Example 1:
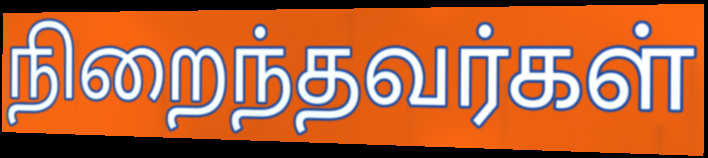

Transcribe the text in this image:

நிறைந்தவர்கள்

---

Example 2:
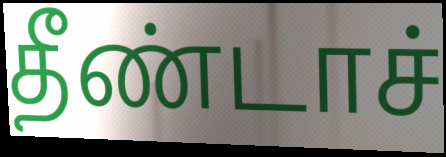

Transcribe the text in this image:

தீண்டாச்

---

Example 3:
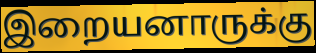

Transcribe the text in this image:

இறையனாருக்கு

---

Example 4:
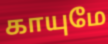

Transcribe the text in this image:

காயுமே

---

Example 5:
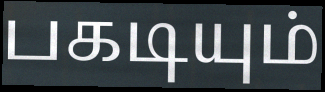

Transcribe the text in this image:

பகடியும்